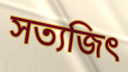
সত্যজিৎ